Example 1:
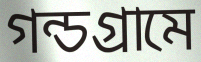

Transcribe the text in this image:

গন্ডগ্রামে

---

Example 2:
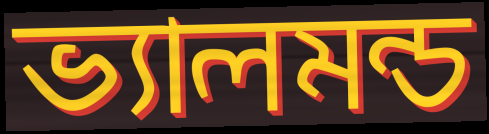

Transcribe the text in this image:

ভ্যালমন্ড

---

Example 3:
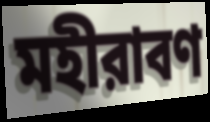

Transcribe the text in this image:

মহীরাবণ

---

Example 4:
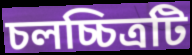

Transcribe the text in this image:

চলচ্চিত্রটি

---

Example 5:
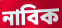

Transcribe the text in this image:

নাবিক